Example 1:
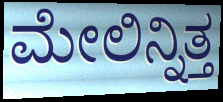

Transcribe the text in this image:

ಮೇಲಿನ್ನಿತ್ತ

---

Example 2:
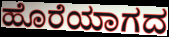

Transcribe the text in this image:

ಹೊರೆಯಾಗದ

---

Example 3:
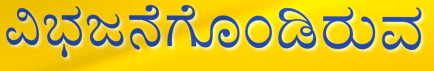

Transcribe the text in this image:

ವಿಭಜನೆಗೊಂಡಿರುವ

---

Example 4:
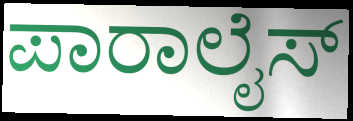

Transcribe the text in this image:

ಪಾರಾಲೈಸ್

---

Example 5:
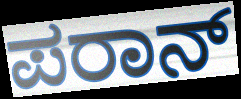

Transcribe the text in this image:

ಪರಾನ್